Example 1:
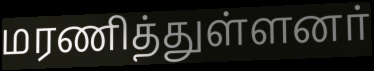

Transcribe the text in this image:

மரணித்துள்ளனர்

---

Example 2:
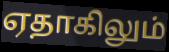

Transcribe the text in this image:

ஏதாகிலும்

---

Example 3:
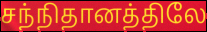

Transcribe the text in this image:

சந்நிதானத்திலே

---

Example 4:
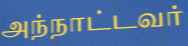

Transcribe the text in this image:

அந்நாட்டவர்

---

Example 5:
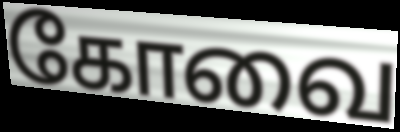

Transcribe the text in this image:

கோவை